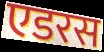
एडरस